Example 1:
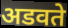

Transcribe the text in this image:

अडवते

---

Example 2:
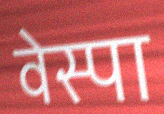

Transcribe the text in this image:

वेस्पा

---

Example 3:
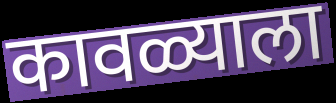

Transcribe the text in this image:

कावळ्याला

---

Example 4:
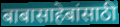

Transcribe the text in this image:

बाबासाहेबांसाठी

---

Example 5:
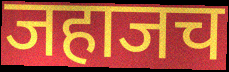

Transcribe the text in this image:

जहाजच